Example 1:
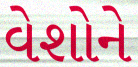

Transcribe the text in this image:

વેશોને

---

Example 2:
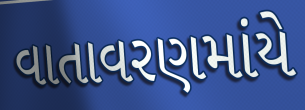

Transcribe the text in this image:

વાતાવરણમાંયે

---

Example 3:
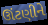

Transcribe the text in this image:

ઊંટણીને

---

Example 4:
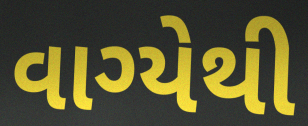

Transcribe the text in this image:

વાગ્યેથી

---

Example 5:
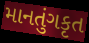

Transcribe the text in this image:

માનતુંગકૃત